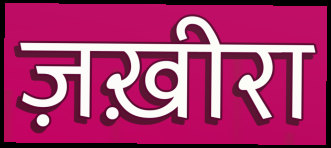
ज़ख़ीरा